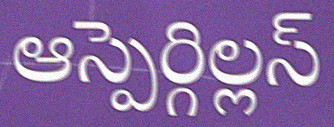
ఆస్పెర్గిల్లస్